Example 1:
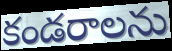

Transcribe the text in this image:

కండరాలను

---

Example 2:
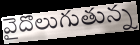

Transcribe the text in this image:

వైదొలుగుతున్న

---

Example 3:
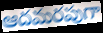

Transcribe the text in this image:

ఆదమరపుగా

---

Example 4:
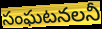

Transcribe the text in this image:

సంఘటనలనీ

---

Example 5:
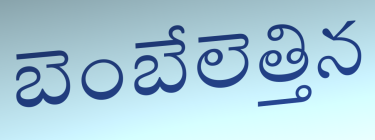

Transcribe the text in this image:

బెంబేలెత్తిన